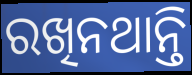
ରଖିନଥାନ୍ତି